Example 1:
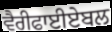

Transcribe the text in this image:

ਵੈਰੀਫਾਈਏਬਲ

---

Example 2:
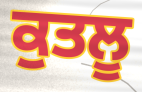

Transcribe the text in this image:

ਕੁਤਲੂ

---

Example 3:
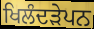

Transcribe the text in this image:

ਖਿਲੰਦੜੇਪਨ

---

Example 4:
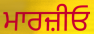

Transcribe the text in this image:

ਮਾਰਜ਼ੀਓ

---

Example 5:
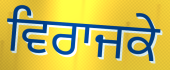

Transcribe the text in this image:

ਵਿਰਾਜਕੇ